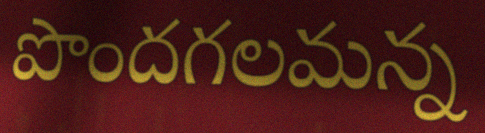
పొందగలమన్న